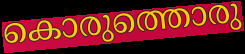
കൊരുത്തൊരു